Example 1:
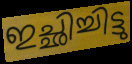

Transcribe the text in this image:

ഇച്ഛിച്ചിട്ടു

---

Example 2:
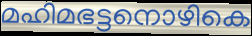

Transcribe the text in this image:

മഹിമഭട്ടനൊഴികെ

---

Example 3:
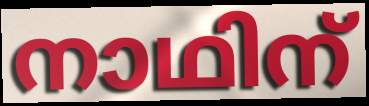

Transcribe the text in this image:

നാഥിന്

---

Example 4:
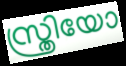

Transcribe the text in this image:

സ്ത്രിയോ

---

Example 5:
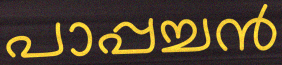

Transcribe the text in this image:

പാപ്പച്ചൻ